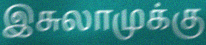
இசுலாமுக்கு